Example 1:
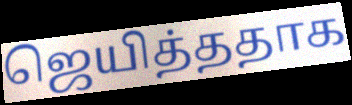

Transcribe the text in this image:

ஜெயித்ததாக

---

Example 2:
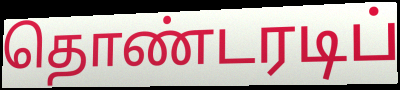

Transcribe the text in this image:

தொண்டரடிப்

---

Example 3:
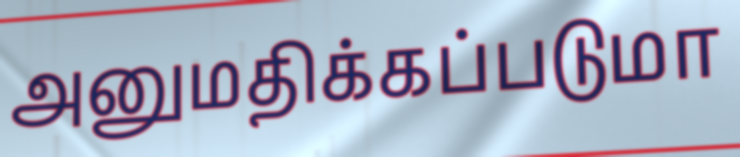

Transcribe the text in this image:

அனுமதிக்கப்படுமா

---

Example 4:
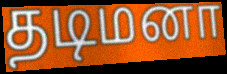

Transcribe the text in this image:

தடிமனா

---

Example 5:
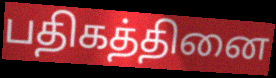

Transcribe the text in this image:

பதிகத்தினை